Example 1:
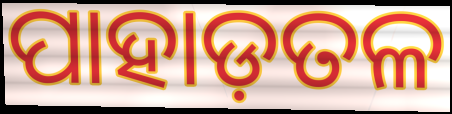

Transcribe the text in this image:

ପାହାଡ଼ତଳ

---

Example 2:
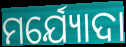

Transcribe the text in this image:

ମର୍ଯ୍ୟୋଦା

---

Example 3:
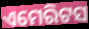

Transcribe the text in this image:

ଏମେରିଟସ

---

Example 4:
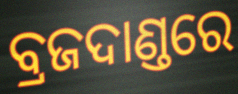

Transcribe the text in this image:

ବ୍ରଜଦାଣ୍ଡରେ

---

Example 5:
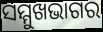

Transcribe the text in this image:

ସମ୍ମୁଖଭାଗର